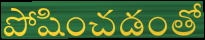
పోషించడంతో